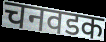
चनवडक